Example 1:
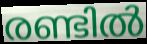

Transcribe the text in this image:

രണ്ടിൽ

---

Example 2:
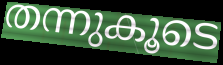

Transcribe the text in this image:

തന്നുകൂടെ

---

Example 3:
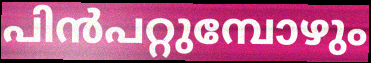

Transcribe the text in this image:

പിൻപറ്റുമ്പോഴും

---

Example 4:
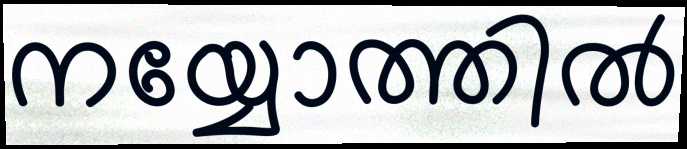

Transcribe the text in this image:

നയ്യോത്തിൽ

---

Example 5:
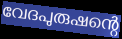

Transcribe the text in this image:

വേദപുരുഷന്റെ